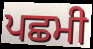
ਪਛਮੀ